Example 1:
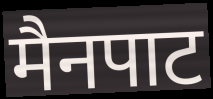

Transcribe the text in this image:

मैनपाट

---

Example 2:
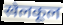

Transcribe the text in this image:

खेलकूल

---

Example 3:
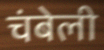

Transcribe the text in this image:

चंबेली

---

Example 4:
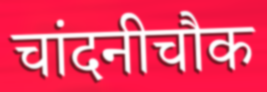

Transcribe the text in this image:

चांदनीचौक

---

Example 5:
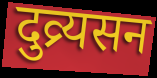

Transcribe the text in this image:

दुव्र्यसन